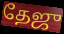
தேஜு